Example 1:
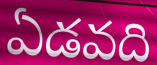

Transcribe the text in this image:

ఏడవది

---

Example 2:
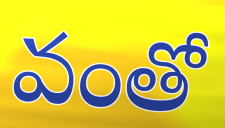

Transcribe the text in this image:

వంతో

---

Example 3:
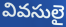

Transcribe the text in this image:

వివసులై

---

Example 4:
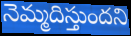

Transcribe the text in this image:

నెమ్మదిస్తుందని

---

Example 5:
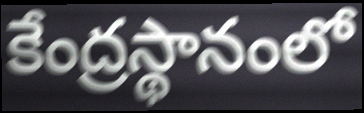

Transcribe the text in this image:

కేంద్రస్థానంలో